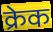
क्रेक